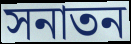
সনাতন